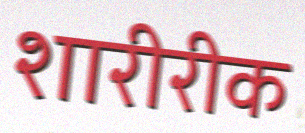
शारीरीक